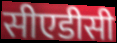
सीएडीसी